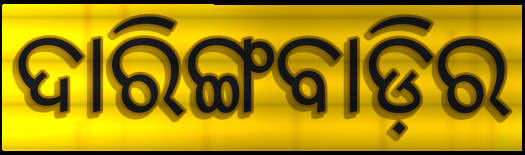
ଦାରିଙ୍ଗବାଡ଼ିର